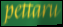
pettaru